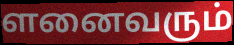
ளனைவரும்